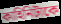
কাহিনিটাকে